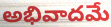
అభివాదమే